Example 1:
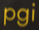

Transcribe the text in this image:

pgi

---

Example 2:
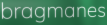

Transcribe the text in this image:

bragmanes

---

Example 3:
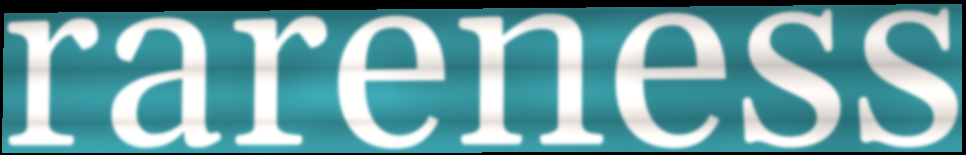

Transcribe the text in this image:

rareness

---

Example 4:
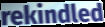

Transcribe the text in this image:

rekindled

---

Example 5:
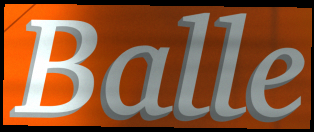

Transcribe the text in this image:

Balle